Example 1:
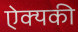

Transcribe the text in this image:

ऐक्यकी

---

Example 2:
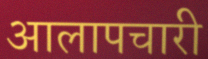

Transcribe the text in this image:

आलापचारी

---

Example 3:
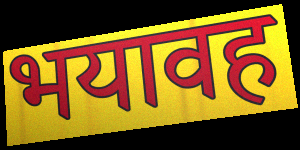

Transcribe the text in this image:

भयावह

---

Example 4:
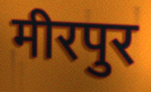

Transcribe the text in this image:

मीरपुर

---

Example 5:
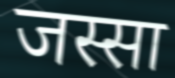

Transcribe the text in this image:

जस्सा